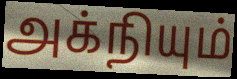
அக்நியும்